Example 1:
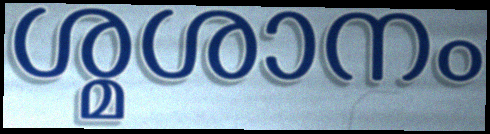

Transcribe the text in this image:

ശ്മശാനം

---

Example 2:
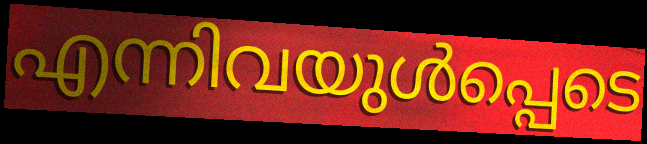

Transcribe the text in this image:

എന്നിവയുൾപ്പെടെ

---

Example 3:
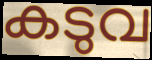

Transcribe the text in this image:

കടുവ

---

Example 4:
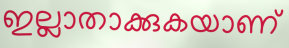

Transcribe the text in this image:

ഇല്ലാതാക്കുകയാണ്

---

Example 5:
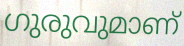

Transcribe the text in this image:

ഗുരുവുമാണ്